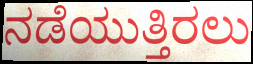
ನಡೆಯುತ್ತಿರಲು